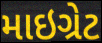
માઇગ્રેટ